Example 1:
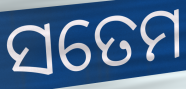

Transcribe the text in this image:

ସତେମ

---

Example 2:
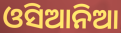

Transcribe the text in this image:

ଓସିଆନିଆ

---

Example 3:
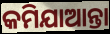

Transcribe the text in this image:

କମିଯାଆନ୍ତା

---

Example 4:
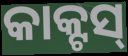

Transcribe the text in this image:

କାକ୍ଟସ୍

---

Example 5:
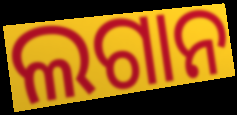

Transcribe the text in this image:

ଲଗାନ